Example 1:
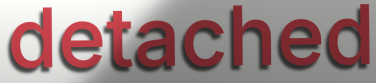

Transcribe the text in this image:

detached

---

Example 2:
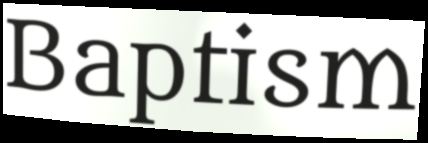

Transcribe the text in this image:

Baptism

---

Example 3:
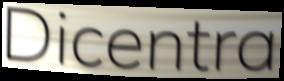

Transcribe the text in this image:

Dicentra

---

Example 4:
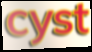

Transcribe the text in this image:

cyst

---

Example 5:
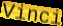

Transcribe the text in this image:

Vinci